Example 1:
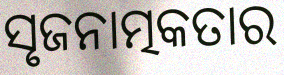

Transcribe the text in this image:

ସୃଜନାତ୍ମକତାର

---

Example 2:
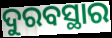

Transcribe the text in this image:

ଦୁରବସ୍ଥାର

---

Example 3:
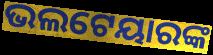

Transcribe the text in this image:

ଭଲଟେୟାରଙ୍କ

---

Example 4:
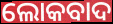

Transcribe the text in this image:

ଲୋକବାଦ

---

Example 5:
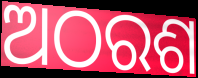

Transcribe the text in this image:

ଅଠରଶ